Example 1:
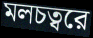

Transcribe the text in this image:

মলচত্বরে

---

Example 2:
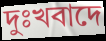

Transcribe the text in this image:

দুঃখবাদে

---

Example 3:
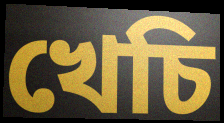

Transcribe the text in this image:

খেচি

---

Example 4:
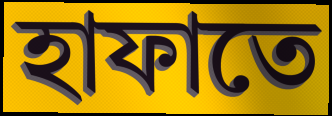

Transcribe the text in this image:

হাফাতে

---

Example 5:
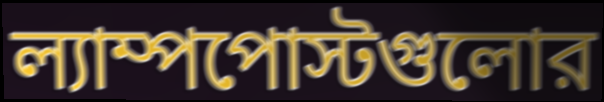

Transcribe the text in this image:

ল্যাম্পপোস্টগুলোর